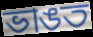
ভাঙত